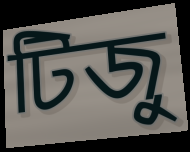
টিজু